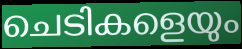
ചെടികളെയും